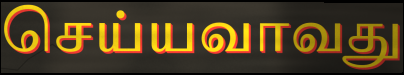
செய்யவாவது